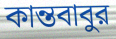
কান্তবাবুর